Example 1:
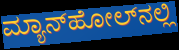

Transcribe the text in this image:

ಮ್ಯಾನ್‌ಹೋಲ್‌ನಲ್ಲಿ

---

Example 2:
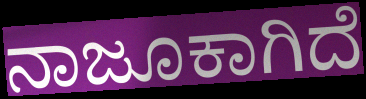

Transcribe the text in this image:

ನಾಜೂಕಾಗಿದೆ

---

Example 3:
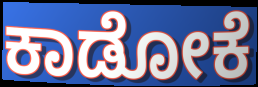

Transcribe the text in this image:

ಕಾಡೋಕೆ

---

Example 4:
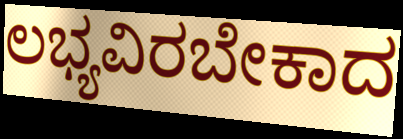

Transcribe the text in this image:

ಲಭ್ಯವಿರಬೇಕಾದ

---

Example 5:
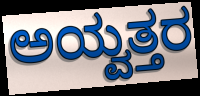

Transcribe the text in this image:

ಅಯ್ವತ್ತರ